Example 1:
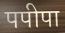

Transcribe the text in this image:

पपीपा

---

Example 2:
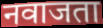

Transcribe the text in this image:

नवाजता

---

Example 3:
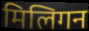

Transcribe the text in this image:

मिलिगन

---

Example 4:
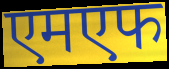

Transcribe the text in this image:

एमएफ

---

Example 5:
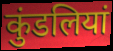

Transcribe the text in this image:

कुंडलियां